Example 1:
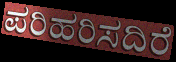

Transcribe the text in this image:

ಪರಿಹರಿಸದಿರೆ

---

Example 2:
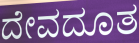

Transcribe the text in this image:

ದೇವದೂತ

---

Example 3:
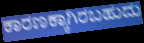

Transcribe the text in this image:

ಕಾರಣಕ್ಕಾಗಿರಬಹುದು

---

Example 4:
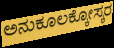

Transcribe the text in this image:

ಅನುಕೂಲಕ್ಕೋಸ್ಕರ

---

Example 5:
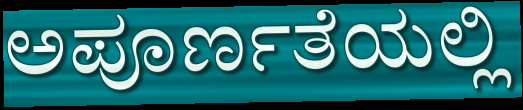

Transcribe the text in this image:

ಅಪೂರ್ಣತೆಯಲ್ಲಿ